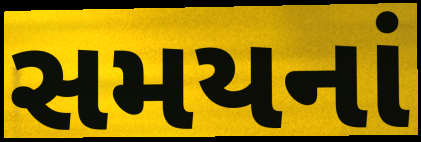
સમયનાં